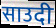
साउदी